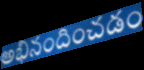
అభినందించడం